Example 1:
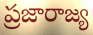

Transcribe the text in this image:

ప్రజారాజ్య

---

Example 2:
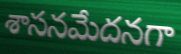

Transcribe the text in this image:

శాసనమేదనగా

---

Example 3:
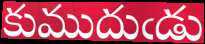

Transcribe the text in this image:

కుముదుఁడు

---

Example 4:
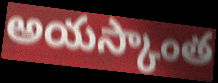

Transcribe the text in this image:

అయస్కాంత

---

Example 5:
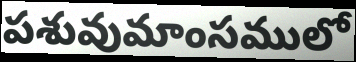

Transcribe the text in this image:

పశువుమాంసములో